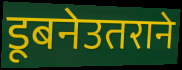
डूबनेउतराने